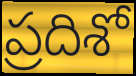
ప్రదిశో